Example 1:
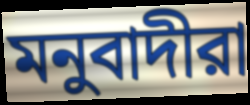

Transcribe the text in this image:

মনুবাদীরা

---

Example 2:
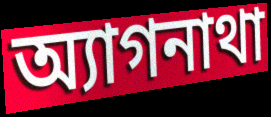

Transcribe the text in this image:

অ্যাগনাথা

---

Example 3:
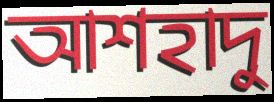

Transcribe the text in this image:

আশহাদু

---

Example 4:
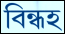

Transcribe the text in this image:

বিন্ধহ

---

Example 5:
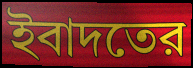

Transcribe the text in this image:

ইবাদতের